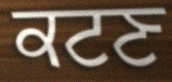
ਕਟਣ